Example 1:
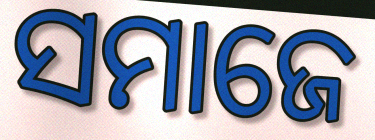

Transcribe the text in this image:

ସମାଜେ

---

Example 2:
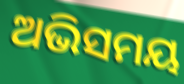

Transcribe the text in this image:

ଅଭିସମୟ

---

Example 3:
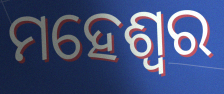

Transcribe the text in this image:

ମହେଶ୍ଵର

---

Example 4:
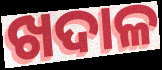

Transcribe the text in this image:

ଖଦାଳ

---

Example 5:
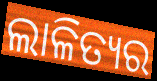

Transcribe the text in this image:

ଲାଳିତ୍ୟର